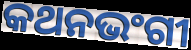
କଥନଭଂଗୀ